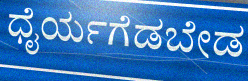
ಧೈರ್ಯಗೆಡಬೇಡ